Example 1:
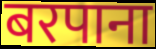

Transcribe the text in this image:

बरपाना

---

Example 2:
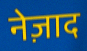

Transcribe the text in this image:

नेज़ाद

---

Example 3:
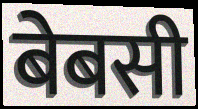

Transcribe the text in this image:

बेबसी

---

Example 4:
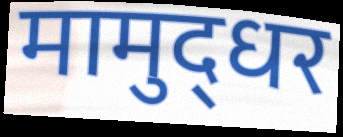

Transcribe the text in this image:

मामुद्धर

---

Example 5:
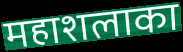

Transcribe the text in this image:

महाशलाका